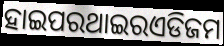
ହାଇପରଥାଇରଏଡିଜମ